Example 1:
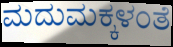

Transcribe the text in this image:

ಮದುಮಕ್ಕಳಂತೆ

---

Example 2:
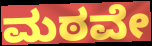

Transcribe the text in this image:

ಮಠವೇ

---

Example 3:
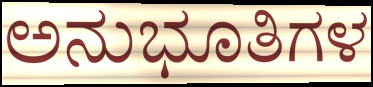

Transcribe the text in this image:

ಅನುಭೂತಿಗಳ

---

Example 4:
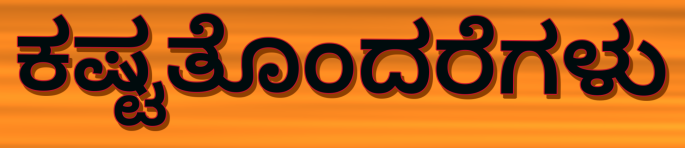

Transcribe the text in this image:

ಕಷ್ಟತೊಂದರೆಗಳು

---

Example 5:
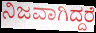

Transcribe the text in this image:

ನಿಜವಾಗಿದ್ದರೆ